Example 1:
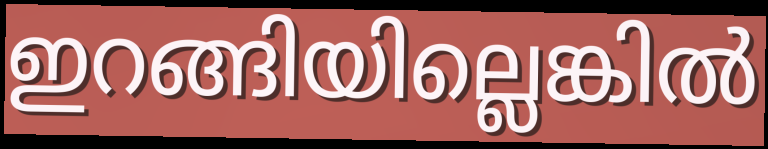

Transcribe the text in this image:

ഇറങ്ങിയില്ലെങ്കിൽ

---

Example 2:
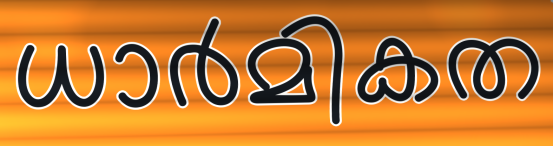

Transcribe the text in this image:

ധാർമികത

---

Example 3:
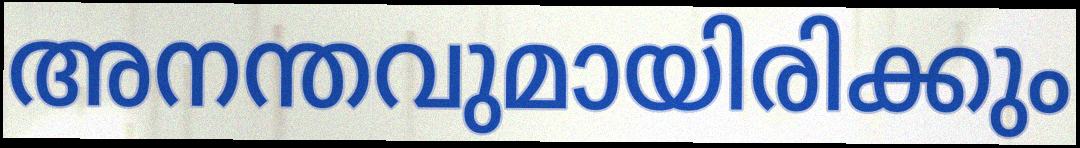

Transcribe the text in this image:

അനന്തവുമായിരിക്കും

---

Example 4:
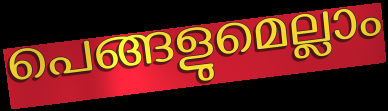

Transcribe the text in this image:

പെങ്ങളുമെല്ലാം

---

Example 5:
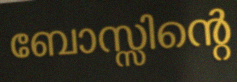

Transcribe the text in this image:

ബോസ്സിന്റെ